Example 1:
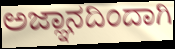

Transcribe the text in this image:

ಅಜ್ಞಾನದಿಂದಾಗಿ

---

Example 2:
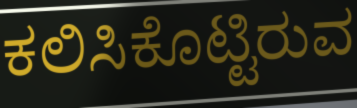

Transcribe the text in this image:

ಕಲಿಸಿಕೊಟ್ಟಿರುವ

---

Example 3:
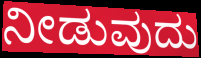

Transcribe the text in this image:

ನೀಡುವುದು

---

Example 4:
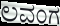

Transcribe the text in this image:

ಲವಂಗ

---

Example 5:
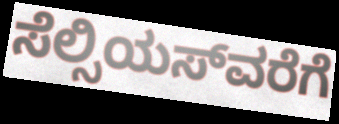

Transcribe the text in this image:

ಸೆಲ್ಸಿಯಸ್‍ವರೆಗೆ